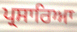
ਪ੍ਰਸਾਰਿਆ